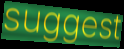
suggest